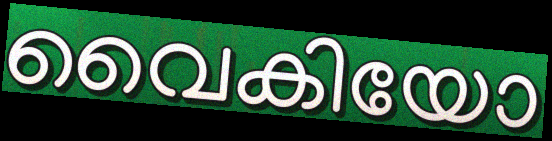
വൈകിയോ